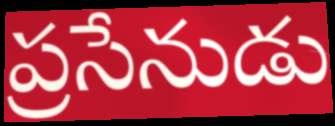
ప్రసేనుడు